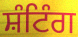
ਸ਼ੰਟਿੰਗ